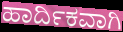
ಹಾರ್ದಿಕವಾಗಿ